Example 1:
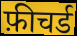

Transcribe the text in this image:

फ़ीचर्ड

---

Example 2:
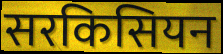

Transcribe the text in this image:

सरकिसियन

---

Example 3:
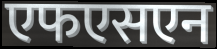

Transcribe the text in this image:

एफएसएन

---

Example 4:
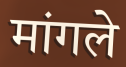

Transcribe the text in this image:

मांगले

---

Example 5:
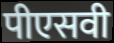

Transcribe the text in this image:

पीएसवी